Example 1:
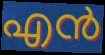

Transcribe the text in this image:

എൻ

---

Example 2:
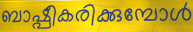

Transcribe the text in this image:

ബാഷ്പീകരിക്കുമ്പോൾ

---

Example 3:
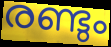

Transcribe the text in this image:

രണ്ടും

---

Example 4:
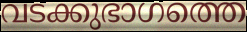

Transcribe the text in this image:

വടക്കുഭാഗത്തെ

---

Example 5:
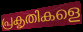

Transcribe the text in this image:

പ്രകൃതികളെ